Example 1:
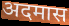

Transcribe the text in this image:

अदमास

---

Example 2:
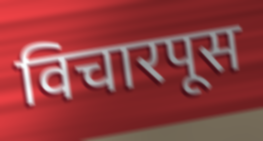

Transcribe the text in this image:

विचारपूस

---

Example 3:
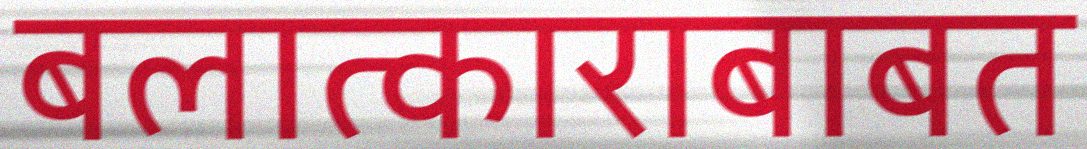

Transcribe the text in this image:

बलात्काराबाबत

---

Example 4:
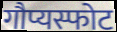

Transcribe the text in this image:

गौप्यस्फोट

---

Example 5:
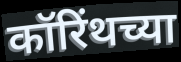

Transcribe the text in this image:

कॉरिंथच्या